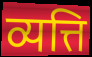
व्यत्ति